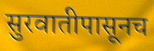
सुरवातीपासूनच